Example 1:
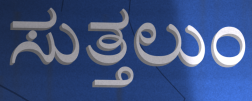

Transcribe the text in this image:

ಸುತ್ತಲುಂ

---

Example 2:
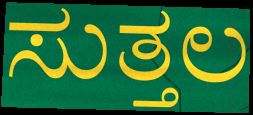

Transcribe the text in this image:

ಸುತ್ತಲ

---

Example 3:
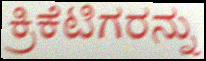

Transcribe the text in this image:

ಕ್ರಿಕೆಟಿಗರನ್ನು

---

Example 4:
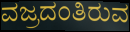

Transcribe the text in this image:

ವಜ್ರದಂತಿರುವ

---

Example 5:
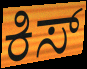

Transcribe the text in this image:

ಕಿಸ್